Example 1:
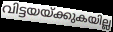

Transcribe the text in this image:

വിട്ടയയ്ക്കുകയില്ല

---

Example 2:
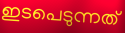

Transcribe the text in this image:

ഇടപെടുന്നത്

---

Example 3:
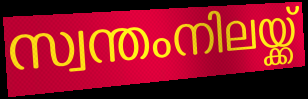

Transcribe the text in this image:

സ്വന്തംനിലയ്ക്ക്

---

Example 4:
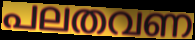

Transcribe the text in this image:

പലതവണ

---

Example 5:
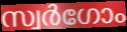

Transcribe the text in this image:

സ്വർഗോം